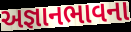
અજ્ઞાનભાવના